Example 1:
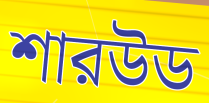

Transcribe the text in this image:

শারউড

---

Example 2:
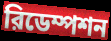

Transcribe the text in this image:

রিডেম্পশন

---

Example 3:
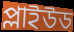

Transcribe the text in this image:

প্লাইউড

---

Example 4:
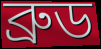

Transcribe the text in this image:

ব্রুড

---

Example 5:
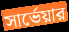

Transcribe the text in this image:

সার্ভেয়ার